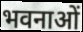
भवनाओं